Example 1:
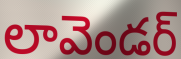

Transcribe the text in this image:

లావెండర్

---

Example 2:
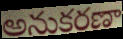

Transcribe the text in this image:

అనుకరణా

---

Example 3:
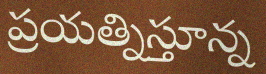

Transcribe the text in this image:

ప్రయత్నిస్తూన్న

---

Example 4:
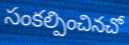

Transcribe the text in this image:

సంకల్పించినచో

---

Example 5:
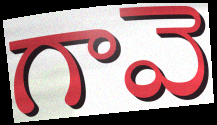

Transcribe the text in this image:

గావె